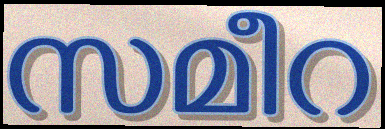
സമീറ